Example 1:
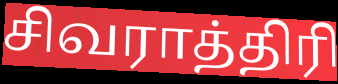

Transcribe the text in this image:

சிவராத்திரி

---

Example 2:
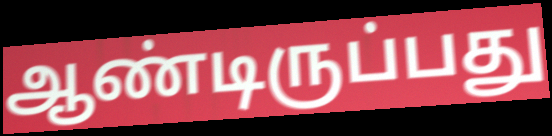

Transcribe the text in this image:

ஆண்டிருப்பது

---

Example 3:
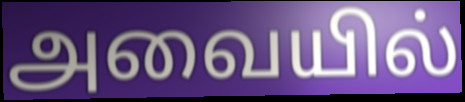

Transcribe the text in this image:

அவையில்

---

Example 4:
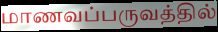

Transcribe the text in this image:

மாணவப்பருவத்தில்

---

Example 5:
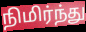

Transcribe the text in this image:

நிமிர்ந்து